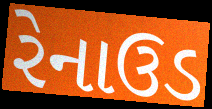
રેનાઉડ